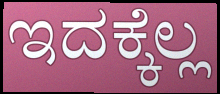
ಇದಕ್ಕೆಲ್ಲ